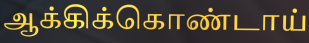
ஆக்கிக்கொண்டாய்